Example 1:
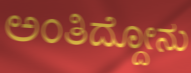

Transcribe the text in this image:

ಅಂತಿದ್ದೋನು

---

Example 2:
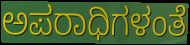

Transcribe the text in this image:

ಅಪರಾಧಿಗಳಂತೆ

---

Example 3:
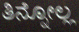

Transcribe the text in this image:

ತಿನ್ನೋಲ್ಲ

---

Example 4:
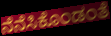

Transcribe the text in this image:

ನೆನೆಸಿಕೊಂಡಂತೆ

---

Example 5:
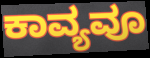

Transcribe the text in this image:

ಕಾವ್ಯವೂ